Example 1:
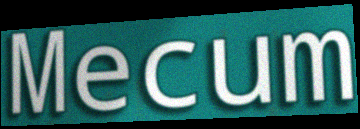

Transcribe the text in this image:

Mecum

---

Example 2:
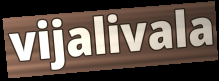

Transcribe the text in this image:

vijalivala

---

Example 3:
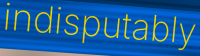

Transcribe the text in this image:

indisputably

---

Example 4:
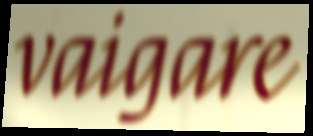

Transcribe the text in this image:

vaigare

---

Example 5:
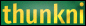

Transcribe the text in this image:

thunkni